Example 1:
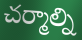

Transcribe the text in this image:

చర్మాల్ని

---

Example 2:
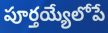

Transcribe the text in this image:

పూర్తయ్యేలోపే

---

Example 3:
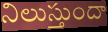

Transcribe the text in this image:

నిలుస్తుందా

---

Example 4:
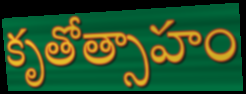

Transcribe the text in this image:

కృతోత్సాహం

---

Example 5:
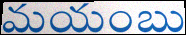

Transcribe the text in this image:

మయంబు